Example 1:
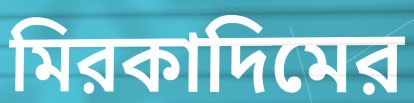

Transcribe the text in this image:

মিরকাদিমের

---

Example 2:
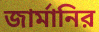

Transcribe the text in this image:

জার্মানির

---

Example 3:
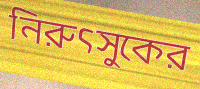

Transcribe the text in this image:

নিরুৎসুকের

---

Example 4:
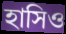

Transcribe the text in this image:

হাসিও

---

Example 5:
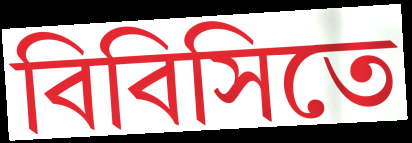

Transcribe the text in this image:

বিবিসিতে